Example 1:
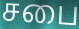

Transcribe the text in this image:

சபை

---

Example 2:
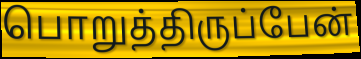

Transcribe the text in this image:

பொறுத்திருப்பேன்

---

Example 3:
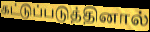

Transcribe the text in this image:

கட்டுப்படுத்தினால்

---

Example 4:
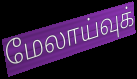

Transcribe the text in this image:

மேலாய்வுக்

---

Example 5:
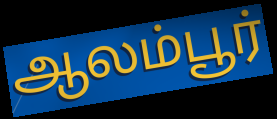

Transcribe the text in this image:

ஆலம்பூர்